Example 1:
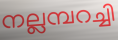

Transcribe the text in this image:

നല്ലമ്പറച്ചി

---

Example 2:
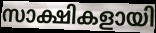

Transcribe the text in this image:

സാക്ഷികളായി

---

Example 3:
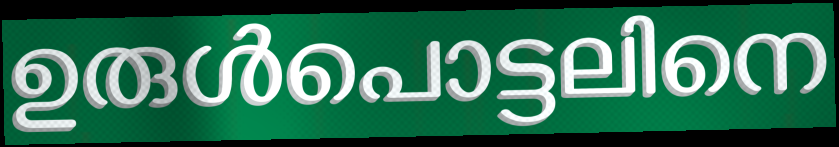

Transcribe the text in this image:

ഉരുൾപൊട്ടലിനെ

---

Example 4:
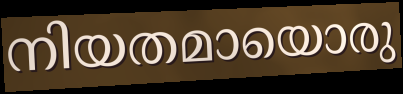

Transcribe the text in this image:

നിയതമായൊരു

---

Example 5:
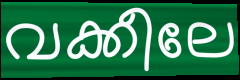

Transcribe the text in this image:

വക്കീലേ